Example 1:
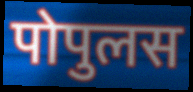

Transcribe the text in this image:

पोपुलस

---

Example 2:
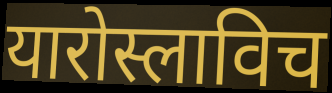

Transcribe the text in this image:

यारोस्लाविच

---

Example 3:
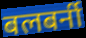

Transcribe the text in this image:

बलबर्नी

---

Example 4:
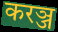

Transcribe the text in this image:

करञ्ज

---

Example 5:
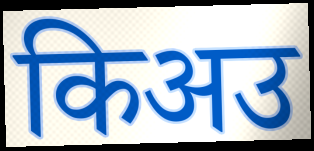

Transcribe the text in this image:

किअउ